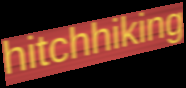
hitchhiking